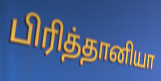
பிரித்தானியா